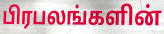
பிரபலங்களின்